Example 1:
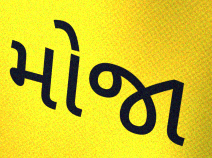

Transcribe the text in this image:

મોજા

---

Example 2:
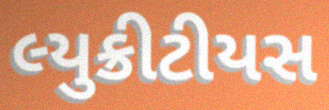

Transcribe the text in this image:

લ્યુક્રીટીયસ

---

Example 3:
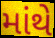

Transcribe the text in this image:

માંથે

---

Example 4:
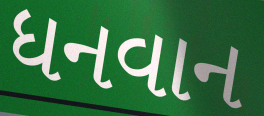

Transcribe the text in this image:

ધનવાન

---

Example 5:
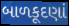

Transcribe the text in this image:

બાળકૂદણાં